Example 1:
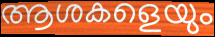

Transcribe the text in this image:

ആശകളെയും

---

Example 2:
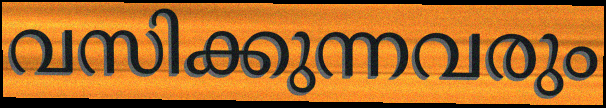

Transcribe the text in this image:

വസിക്കുന്നവരും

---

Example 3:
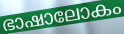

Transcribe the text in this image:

ഭാഷാലോകം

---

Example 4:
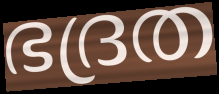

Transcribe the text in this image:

ഭദ്രത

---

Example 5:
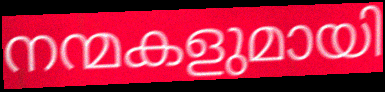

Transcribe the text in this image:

നന്മകളുമായി